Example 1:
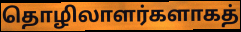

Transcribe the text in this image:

தொழிலாளர்களாகத்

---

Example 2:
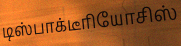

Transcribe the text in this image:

டிஸ்பாக்டீரியோசிஸ்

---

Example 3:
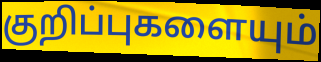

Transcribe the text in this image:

குறிப்புகளையும்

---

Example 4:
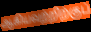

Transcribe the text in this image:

ஆகியவற்றிற்குப்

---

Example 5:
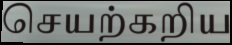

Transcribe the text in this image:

செயற்கறிய